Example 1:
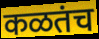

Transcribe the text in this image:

कळतंच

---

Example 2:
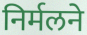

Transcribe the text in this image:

निर्मलने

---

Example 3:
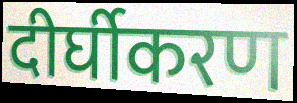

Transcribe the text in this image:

दीर्घीकरण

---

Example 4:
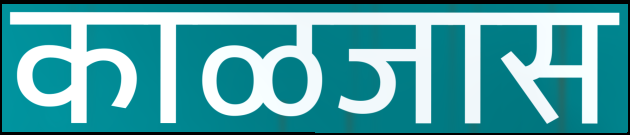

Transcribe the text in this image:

काळजास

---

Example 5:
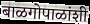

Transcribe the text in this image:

बाळगोपाळांशी